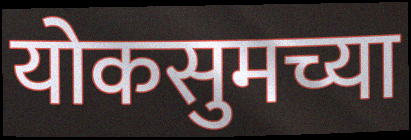
योकसुमच्या